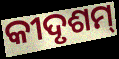
କୀଦୃଶମ୍